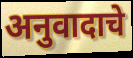
अनुवादाचे